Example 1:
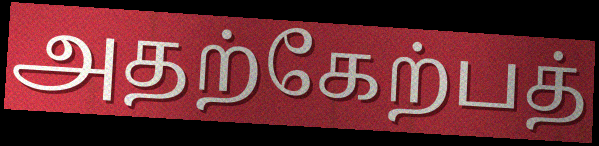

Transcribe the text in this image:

அதற்கேற்பத்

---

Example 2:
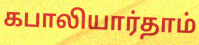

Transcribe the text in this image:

கபாலியார்தாம்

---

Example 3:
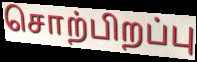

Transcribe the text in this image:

சொற்பிறப்பு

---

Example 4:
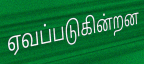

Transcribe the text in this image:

ஏவப்படுகின்றன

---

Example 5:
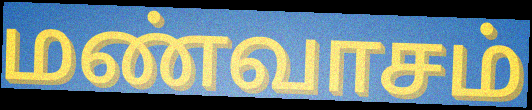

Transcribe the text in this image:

மண்வாசம்